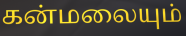
கன்மலையும்